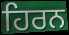
ਹਿਰਨ